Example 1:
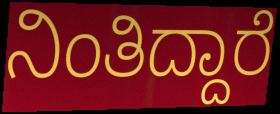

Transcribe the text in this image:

ನಿಂತಿದ್ದಾರೆ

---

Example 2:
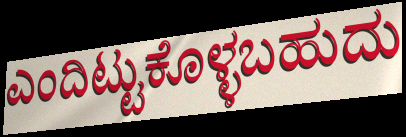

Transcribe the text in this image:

ಎಂದಿಟ್ಟುಕೊಳ್ಳಬಹುದು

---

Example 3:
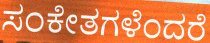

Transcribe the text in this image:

ಸಂಕೇತಗಳೆಂದರೆ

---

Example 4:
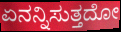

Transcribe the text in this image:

ಏನನ್ನಿಸುತ್ತದೋ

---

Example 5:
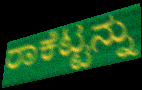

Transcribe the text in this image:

ರಾಕೆಟ್ಟನ್ನು